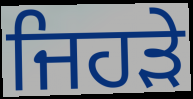
ਜਿਹਡ਼ੇ